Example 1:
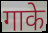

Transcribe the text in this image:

गाके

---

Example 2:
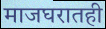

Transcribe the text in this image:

माजघरातही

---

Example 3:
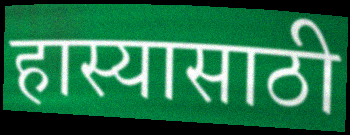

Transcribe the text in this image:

हास्यासाठी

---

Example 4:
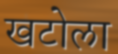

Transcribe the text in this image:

खटोला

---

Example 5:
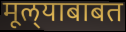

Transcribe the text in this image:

मूल्याबाबत